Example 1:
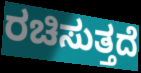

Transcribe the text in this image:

ರಚಿಸುತ್ತದೆ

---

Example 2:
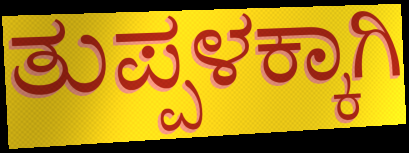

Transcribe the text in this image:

ತುಪ್ಪಳಕ್ಕಾಗಿ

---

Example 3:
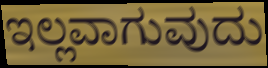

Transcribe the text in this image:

ಇಲ್ಲವಾಗುವುದು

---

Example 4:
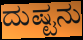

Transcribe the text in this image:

ದುಷ್ಟನು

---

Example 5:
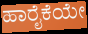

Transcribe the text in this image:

ಹಾರೈಕೆಯೇ